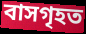
বাসগৃহত